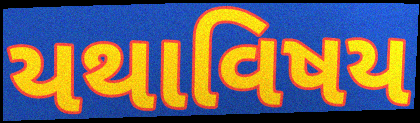
યથાવિષય